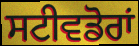
ਸਟੀਵਡੋਰਾਂ